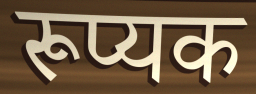
रूप्यक